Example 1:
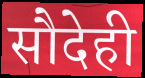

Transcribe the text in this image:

सौदेही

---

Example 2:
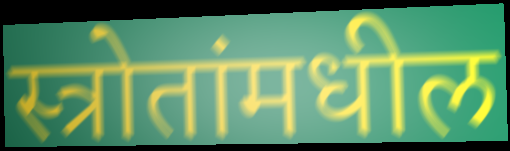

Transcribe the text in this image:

स्त्रोतांमधील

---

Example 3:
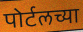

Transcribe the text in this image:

पोर्टलच्या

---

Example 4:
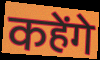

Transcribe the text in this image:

कहेंगे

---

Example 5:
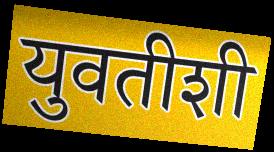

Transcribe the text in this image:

युवतीशी